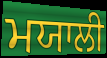
ਮਯਾਲੀ